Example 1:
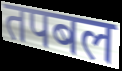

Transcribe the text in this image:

तपबल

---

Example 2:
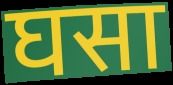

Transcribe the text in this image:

घसा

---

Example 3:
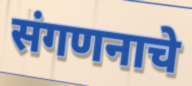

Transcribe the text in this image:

संगणनाचे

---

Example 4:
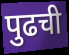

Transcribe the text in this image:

पुढची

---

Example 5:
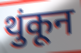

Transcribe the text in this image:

थुंकून